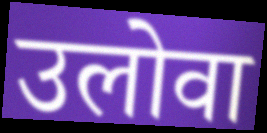
उलोवा